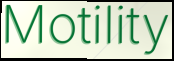
Motility